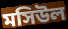
মসিউল